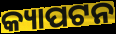
କ୍ୟାପଟନ